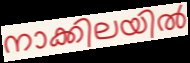
നാക്കിലയിൽ